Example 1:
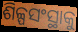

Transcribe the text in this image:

ଶିଳ୍ପସଂସ୍ଥାକୁ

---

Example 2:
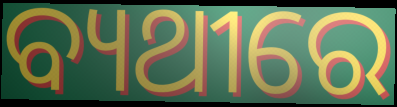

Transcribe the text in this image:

ବ୍ୟଥୀରେ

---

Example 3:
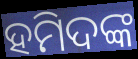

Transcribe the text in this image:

ହମିଦଙ୍କ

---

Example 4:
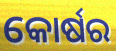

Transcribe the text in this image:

କୋର୍ଷର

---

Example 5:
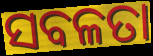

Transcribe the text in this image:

ସବଳତା